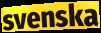
svenska